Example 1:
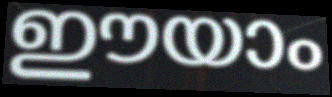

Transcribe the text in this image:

ഈയാം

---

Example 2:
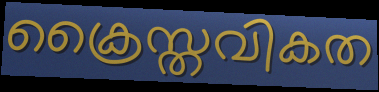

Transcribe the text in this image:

ക്രൈസ്തവികത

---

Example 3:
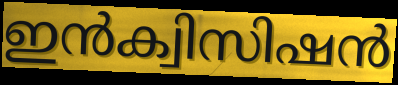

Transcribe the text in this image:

ഇൻക്വിസിഷൻ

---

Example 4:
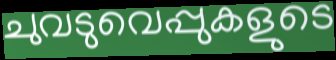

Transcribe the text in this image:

ചുവടുവെപ്പുകളുടെ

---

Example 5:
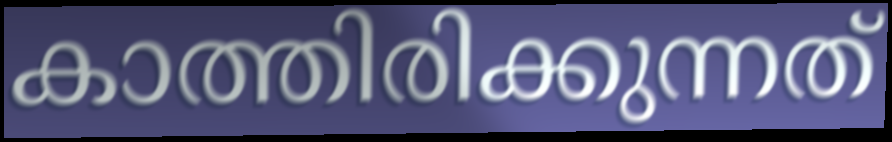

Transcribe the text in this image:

കാത്തിരിക്കുന്നത്